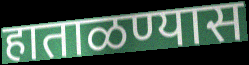
हाताळण्यास